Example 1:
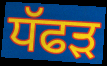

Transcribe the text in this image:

ਧੱਫੜ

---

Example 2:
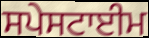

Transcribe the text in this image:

ਸਪੇਸਟਾਈਮ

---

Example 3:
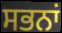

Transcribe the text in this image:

ਸਭਨਾਂ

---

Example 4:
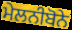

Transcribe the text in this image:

ਮੇਲਨੀਬੋਨੇ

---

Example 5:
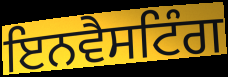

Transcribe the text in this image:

ਇਨਵੈਸਟਿੰਗ